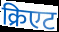
क्रिएट